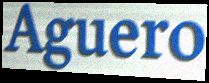
Aguero